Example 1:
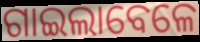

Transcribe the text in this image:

ଗାଇଲାବେଳେ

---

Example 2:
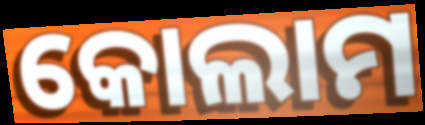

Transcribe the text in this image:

କୋଲାମ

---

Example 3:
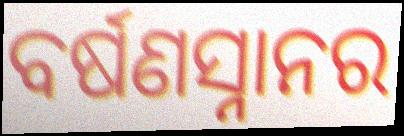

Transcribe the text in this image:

ବର୍ଷଣସ୍ନାନର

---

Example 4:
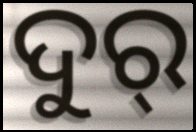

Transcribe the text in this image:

ଦୁର୍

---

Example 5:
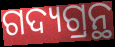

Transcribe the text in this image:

ଗଦ୍ୟଗ୍ରନ୍ଥ